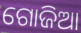
ଗୋଜିଆ